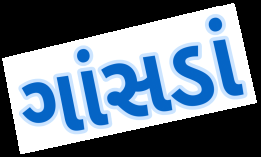
ગાંસડાં